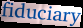
fiduciary